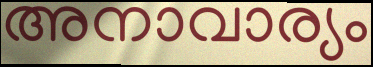
അനാവാര്യം